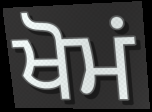
ਖੋਮਂ